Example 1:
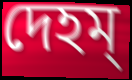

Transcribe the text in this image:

দেহম্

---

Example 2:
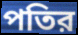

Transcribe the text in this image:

পতির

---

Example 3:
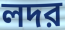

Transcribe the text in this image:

লদর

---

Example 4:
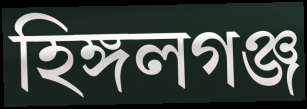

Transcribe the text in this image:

হিঙ্গলগঞ্জ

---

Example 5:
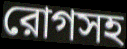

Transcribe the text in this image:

রোগসহ